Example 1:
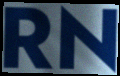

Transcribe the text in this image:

RN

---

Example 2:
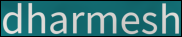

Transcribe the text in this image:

dharmesh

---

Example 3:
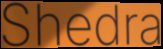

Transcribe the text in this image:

Shedra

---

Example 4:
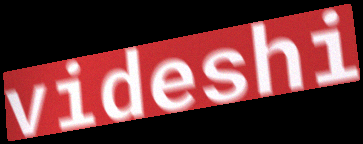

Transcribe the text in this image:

videshi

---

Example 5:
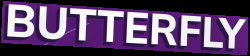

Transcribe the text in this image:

BUTTERFLY